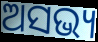
ଅସଭ୍ୟ